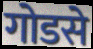
गोडसे